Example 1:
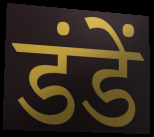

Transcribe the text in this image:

डंडें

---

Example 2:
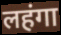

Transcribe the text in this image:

लहंगा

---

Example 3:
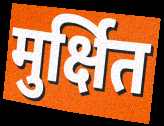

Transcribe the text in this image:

मुर्क्षित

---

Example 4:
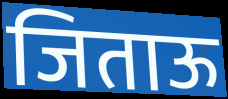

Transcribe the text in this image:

जिताऊ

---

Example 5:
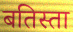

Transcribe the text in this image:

बतिस्ता